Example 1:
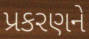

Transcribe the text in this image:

પ્રકરણને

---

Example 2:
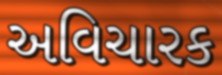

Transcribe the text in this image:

અવિચારક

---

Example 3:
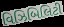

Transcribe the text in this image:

વિઝિબિલિટી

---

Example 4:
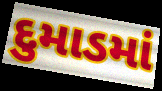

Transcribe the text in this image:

દુમાડમાં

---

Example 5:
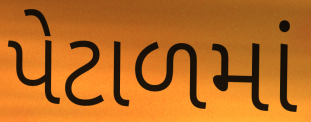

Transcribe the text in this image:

પેટાળમાં